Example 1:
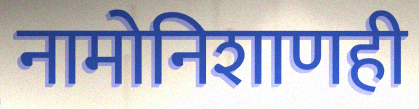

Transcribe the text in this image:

नामोनिशाणही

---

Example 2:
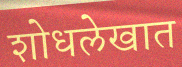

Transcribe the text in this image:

शोधलेखात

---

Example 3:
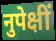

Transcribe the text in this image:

नुपेक्षीं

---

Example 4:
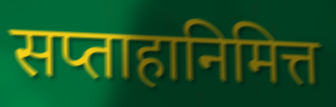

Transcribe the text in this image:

सप्ताहानिमित्त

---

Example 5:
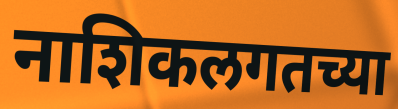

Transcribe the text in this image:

नाशिकलगतच्या